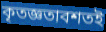
কৃতজ্ঞতাবশতই